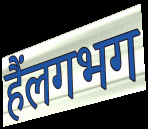
हैंलगभग